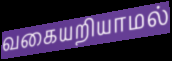
வகையறியாமல்